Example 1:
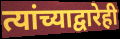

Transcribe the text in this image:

त्यांच्याद्वारेही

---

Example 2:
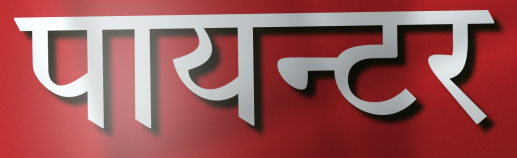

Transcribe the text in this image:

पायन्टर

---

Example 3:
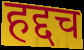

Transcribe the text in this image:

हद्दच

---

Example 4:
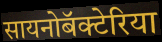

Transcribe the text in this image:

सायनोबॅक्टेरिया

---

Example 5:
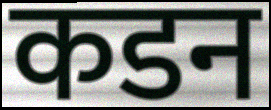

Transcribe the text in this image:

कडन